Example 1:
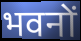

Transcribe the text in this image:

भवनों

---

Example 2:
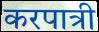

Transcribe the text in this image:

करपात्री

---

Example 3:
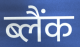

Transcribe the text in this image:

ब्लैंक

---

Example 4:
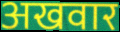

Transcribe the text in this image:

अखवार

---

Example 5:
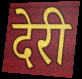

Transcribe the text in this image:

देरी